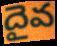
దైవ